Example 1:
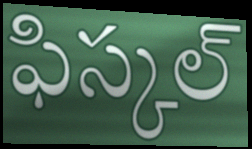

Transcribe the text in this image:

ఫిస్కల్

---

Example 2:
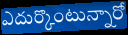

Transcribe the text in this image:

ఎదుర్కొంటున్నారో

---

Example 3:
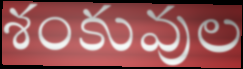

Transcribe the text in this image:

శంకువుల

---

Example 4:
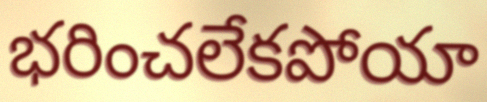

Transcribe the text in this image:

భరించలేకపోయా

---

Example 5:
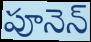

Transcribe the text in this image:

పూనెన్